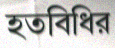
হতবিধির